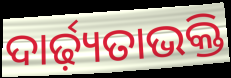
ଦାର୍ଢ଼୍ୟତାଭକ୍ତି